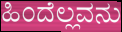
ಹಿಂದೆಲ್ಲವನು